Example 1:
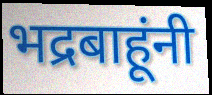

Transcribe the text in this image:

भद्रबाहूंनी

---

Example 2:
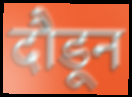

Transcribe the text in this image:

दौडून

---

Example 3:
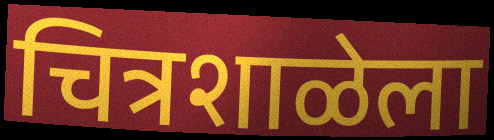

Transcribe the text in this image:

चित्रशाळेला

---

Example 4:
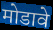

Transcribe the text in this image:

मोडावे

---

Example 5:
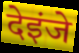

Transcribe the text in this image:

देइंजे